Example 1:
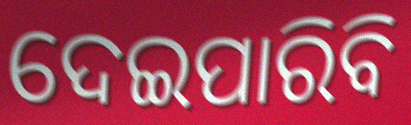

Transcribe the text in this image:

ଦେଇପାରିବି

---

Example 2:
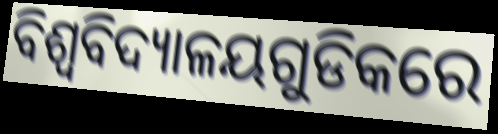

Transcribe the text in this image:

ବିଶ୍ୱବିଦ୍ୟାଳୟଗୁଡିକରେ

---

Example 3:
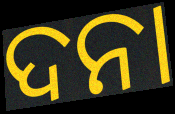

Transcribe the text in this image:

ଦନା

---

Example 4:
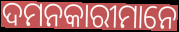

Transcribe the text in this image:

ଦମନକାରୀମାନେ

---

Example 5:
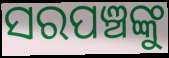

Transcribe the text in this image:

ସରପଞ୍ଚଙ୍କୁ